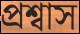
প্রশ্বাস